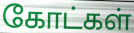
கோட்கள்